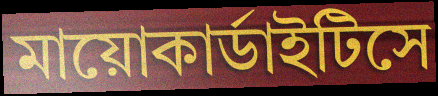
মায়োকার্ডাইটিসে